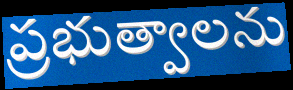
ప్రభుత్వాలను